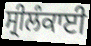
ਸ੍ਰੀਲੰਕਾਈ